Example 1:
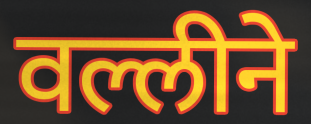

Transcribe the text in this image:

वल्लीने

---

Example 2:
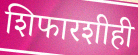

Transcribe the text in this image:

शिफारशीही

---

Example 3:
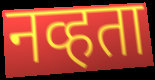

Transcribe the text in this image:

नव्हता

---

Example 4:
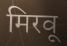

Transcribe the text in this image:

मिरवू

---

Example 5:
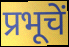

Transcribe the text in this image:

प्रभूचें